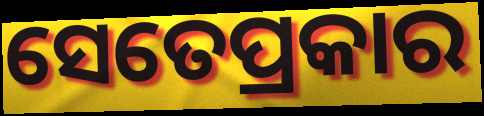
ସେତେପ୍ରକାର